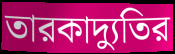
তারকাদ্যুতির